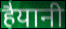
हैयानी